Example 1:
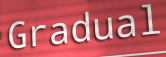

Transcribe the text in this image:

Gradual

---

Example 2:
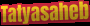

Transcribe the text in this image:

Tatyasaheb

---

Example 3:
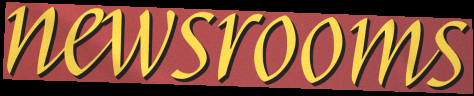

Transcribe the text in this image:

newsrooms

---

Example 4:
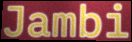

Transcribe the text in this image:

Jambi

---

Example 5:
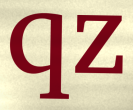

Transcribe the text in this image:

qz